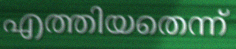
എത്തിയതെന്ന്